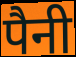
पैनी